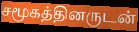
சமூகத்தினருடன்